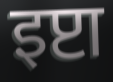
इप्टा